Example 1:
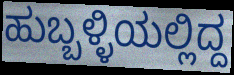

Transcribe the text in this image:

ಹುಬ್ಬಳ್ಳಿಯಲ್ಲಿದ್ದ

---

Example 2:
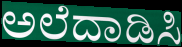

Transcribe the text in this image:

ಅಲೆದಾಡಿಸಿ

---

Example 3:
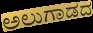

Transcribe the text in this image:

ಅಲುಗಾಡದ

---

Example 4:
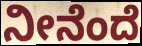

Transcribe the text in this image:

ನೀನೆಂದೆ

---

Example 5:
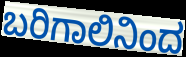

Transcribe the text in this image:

ಬರಿಗಾಲಿನಿಂದ